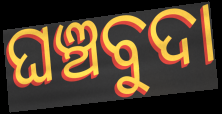
ଘଞ୍ଚବୁଦା